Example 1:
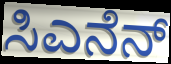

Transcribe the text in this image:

ಸಿಎನೆನ್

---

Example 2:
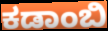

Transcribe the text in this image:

ಕಡಾಂಬಿ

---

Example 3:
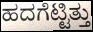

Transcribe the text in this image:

ಹದಗೆಟ್ಟಿತ್ತು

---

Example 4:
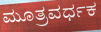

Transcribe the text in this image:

ಮೂತ್ರವರ್ಧಕ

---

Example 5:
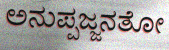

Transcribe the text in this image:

ಅನುಪ್ಪಜ್ಜನತೋ